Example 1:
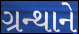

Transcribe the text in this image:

ગ્રન્થાને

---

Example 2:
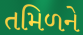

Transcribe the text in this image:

તમિળને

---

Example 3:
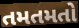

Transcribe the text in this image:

તમતમતો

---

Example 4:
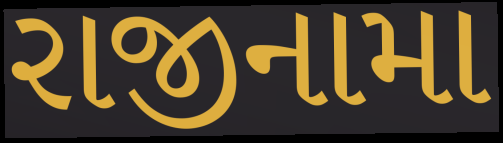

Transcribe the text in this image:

રાજીનામા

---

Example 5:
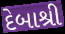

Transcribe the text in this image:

દેબાશ્રી